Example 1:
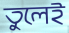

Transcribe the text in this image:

তুলেই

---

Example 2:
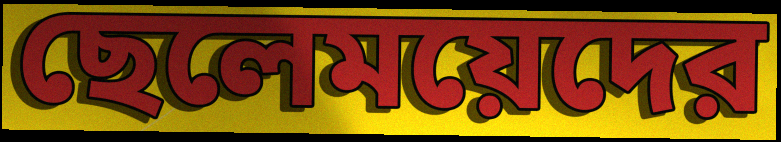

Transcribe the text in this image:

ছেলেময়েদের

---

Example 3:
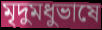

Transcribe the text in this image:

মৃদুমধুভাষে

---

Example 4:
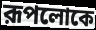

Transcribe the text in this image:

রূপলোকে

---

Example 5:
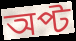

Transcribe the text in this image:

অপ্ট